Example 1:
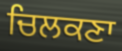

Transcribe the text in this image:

ਚਿਲਕਣਾ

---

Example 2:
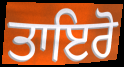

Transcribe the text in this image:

ਤਾਇਰੋ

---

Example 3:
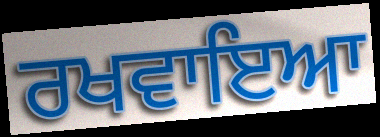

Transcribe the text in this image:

ਰਖਵਾਇਆ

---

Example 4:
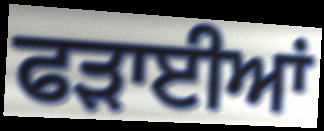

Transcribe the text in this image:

ਫੜਾਈਆਂ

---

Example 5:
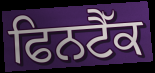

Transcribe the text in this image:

ਫਿਨਟੈੱਕ